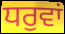
ਧਰੁਵਾਂ